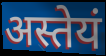
अस्तेयं